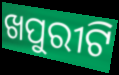
ଖପୁରୀଟି